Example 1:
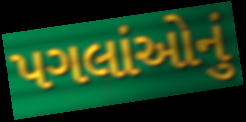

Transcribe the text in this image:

પગલાંઓનું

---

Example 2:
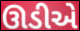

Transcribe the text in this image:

ઊડીએ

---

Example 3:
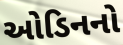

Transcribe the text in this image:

ઓડિનનો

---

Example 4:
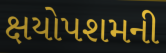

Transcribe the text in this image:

ક્ષયોપશમની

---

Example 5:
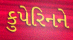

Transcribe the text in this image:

કુપેરિનને